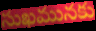
సుఖమునకు